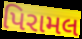
પિરામલ